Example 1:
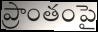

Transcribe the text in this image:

ప్రాంతంపై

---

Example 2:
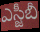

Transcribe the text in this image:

ఎస్జీబీ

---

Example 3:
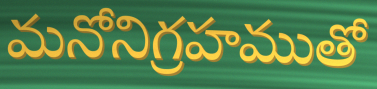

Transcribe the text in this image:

మనోనిగ్రహముతో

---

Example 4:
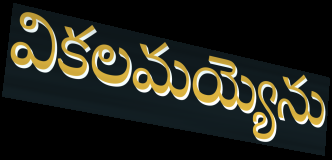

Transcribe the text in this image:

వికలమయ్యెను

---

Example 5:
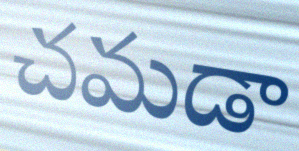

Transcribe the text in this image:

చమడా